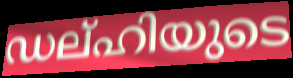
ഡല്ഹിയുടെ